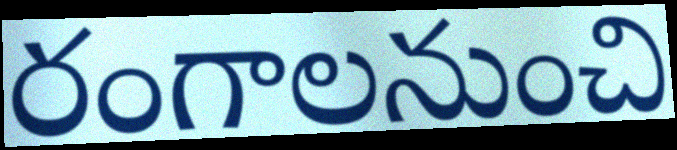
రంగాలనుంచి